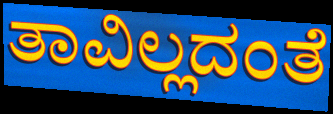
ತಾವಿಲ್ಲದಂತೆ